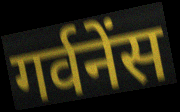
गर्वनेंस